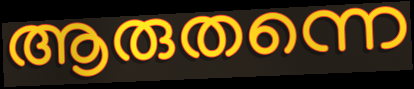
ആരുതന്നെ